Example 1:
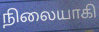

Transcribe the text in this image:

நிலையாகி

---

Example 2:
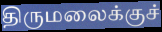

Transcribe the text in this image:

திருமலைக்குச்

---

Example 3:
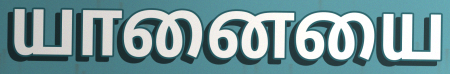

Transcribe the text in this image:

யானையை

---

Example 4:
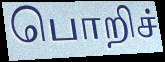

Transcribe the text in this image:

பொறிச்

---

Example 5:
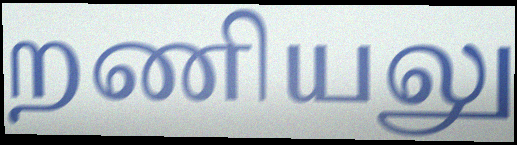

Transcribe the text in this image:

றணியலு